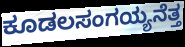
ಕೂಡಲಸಂಗಯ್ಯನೆತ್ತ